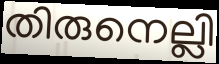
തിരുനെല്ലി